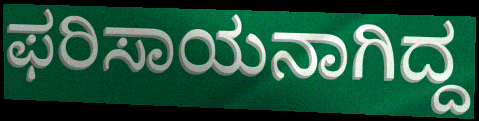
ಫರಿಸಾಯನಾಗಿದ್ದ